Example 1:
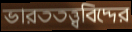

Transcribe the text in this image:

ভারততত্ত্ববিদ্দের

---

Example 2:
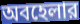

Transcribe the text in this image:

অবহেলার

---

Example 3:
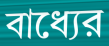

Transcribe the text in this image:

বাধ্যের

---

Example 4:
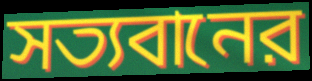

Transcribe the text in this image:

সত্যবানের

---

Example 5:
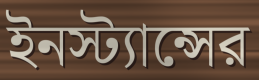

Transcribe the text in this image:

ইনস্ট্যান্সের